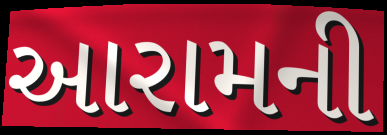
આરામની